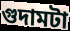
গুদামটা